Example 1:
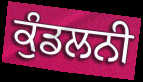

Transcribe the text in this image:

ਕੁੰਡਲਨੀ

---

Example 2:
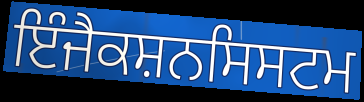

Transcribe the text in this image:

ਇੰਜੈਕਸ਼ਨਸਿਸਟਮ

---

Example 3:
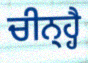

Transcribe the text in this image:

ਚੀਨ੍ਹ੍ਹੈ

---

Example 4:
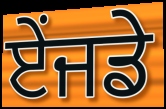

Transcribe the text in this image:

ਏਂਜਡੇ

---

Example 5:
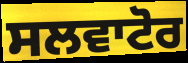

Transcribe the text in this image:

ਸਲਵਾਟੋਰ